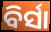
ବିର୍ସା